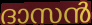
ദാസൻ